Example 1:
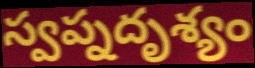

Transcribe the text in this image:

స్వప్నదృశ్యం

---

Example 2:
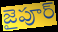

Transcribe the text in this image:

జైపూర్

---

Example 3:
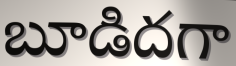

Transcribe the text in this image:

బూడిదగా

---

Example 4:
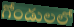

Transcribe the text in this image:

గోండులలో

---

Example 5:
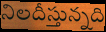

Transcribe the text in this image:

నిలదీస్తున్నది